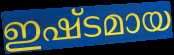
ഇഷ്ടമായ